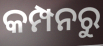
କମ୍ପନରୁ